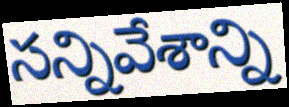
సన్నివేశాన్ని